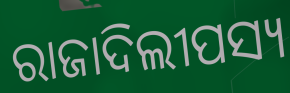
ରାଜାଦିଲୀପସ୍ୟ